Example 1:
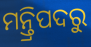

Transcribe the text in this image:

ମନ୍ତ୍ରିପଦରୁ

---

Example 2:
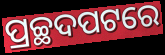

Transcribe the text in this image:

ପ୍ରଚ୍ଛଦପଟରେ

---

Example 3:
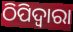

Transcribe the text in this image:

ଠିପିଦ୍ଵାରା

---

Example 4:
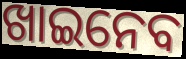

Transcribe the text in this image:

ଖାଇନେବ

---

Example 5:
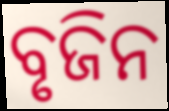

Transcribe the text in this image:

ବୃଜିନ